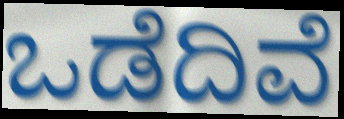
ಒಡೆದಿವೆ